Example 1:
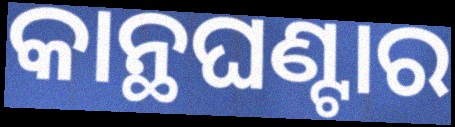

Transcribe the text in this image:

କାନ୍ଥଘଣ୍ଟାର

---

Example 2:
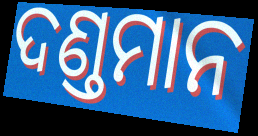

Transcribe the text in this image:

ଦଣ୍ଡମାନ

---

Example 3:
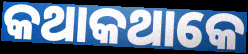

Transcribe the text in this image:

କଥାକଥାକେ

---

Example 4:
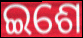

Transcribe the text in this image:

ଇଶେ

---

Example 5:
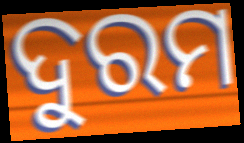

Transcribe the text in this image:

ଦୁରମ